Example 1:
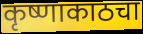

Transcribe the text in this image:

कृष्णाकाठचा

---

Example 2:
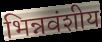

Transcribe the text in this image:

भिन्नवंशीय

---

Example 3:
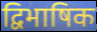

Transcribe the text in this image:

द्विभाषिक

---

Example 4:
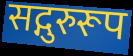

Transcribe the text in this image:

सद्गुरुरूप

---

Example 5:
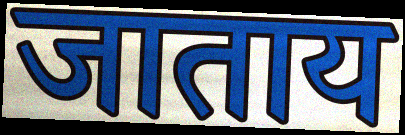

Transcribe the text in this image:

जाताय